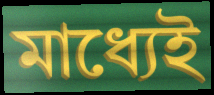
মাধ্যেই